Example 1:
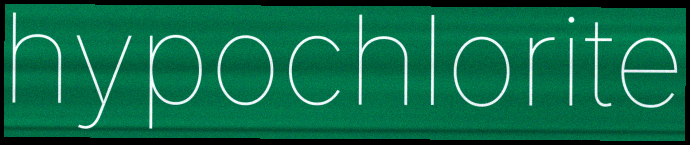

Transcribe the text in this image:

hypochlorite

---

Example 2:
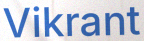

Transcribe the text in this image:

Vikrant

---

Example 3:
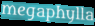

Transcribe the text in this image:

megaphylla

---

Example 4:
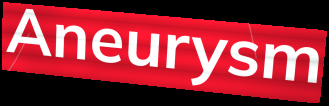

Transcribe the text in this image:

Aneurysm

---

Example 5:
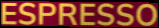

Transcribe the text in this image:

ESPRESSO